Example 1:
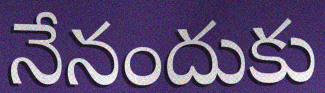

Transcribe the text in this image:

నేనందుకు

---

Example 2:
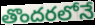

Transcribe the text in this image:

తొందరలోనే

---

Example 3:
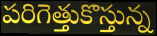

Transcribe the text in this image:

పరిగెత్తుకొస్తున్న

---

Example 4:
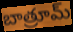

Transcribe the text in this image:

బాత్రూమ్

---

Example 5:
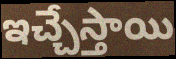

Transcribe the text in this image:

ఇచ్చేస్తాయి